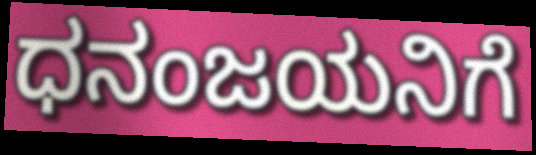
ಧನಂಜಯನಿಗೆ